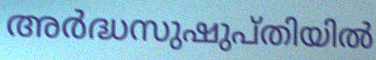
അർദ്ധസുഷുപ്തിയിൽ